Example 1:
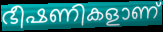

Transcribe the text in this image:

ഭീഷണികളാണ്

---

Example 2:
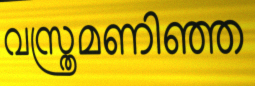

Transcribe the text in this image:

വസ്ത്രമണിഞ്ഞ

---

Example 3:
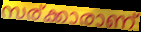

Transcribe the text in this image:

സര്ക്കാരാണ്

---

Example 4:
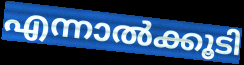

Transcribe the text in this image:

എന്നാൽക്കൂടി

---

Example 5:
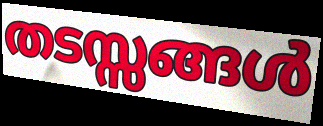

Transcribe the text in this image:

തടസ്സങ്ങൾ